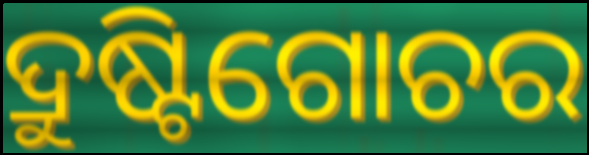
ଦ୍ରୁଷ୍ଟିଗୋଚର